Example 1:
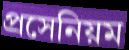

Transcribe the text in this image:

প্রসেনিয়ম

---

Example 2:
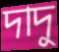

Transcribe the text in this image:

দাদু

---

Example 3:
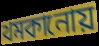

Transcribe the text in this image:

থমকানোয়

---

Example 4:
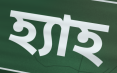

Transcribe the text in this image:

হ্যাহ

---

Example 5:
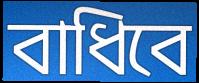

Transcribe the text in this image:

বাধিবে